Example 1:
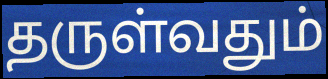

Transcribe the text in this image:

தருள்வதும்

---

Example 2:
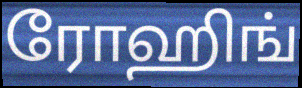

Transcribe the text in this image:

ரோஹிங்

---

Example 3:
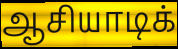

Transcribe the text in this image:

ஆசியாடிக்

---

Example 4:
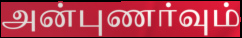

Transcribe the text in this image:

அன்புணர்வும்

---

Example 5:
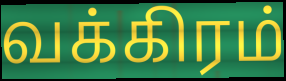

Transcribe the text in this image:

வக்கிரம்